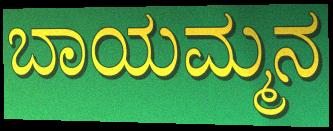
ಬಾಯಮ್ಮನ